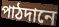
পাঠদানে